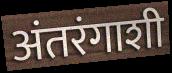
अंतरंगाशी